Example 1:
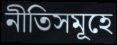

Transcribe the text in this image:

নীতিসমূহে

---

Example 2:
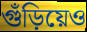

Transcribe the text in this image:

গুঁড়িয়েও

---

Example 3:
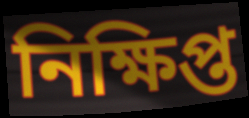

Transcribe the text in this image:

নিক্ষিপ্ত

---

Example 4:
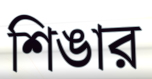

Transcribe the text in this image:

শিঙার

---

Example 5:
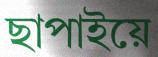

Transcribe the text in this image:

ছাপাইয়ে